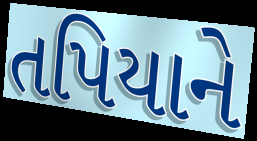
તપિયાને